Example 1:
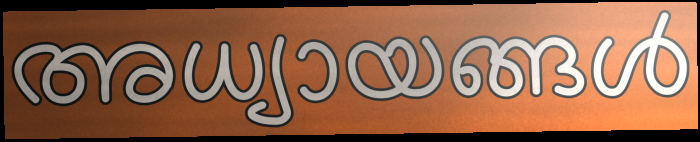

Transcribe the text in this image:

അധ്യായങ്ങൾ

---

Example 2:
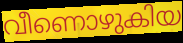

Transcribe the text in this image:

വീണൊഴുകിയ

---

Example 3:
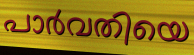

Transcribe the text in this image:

പാർവതിയെ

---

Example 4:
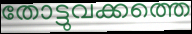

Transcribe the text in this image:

തോട്ടുവക്കത്തെ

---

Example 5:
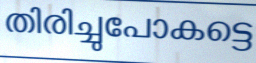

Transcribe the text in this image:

തിരിച്ചുപോകട്ടെ